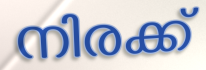
നിരക്ക്